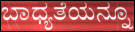
ಬಾಧ್ಯತೆಯನ್ನೂ